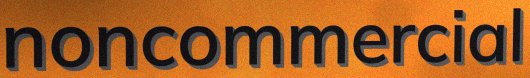
noncommercial